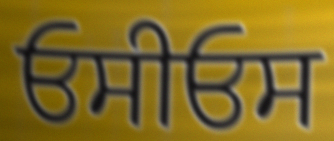
ਓਸੀਓਸ